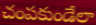
చంపకుండేలా